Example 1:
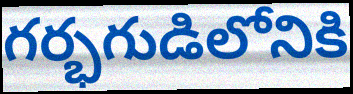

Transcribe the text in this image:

గర్భగుడిలోనికి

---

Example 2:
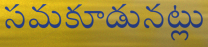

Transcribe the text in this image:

సమకూడునట్లు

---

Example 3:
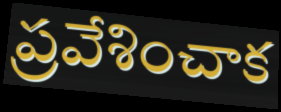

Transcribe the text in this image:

ప్రవేశించాక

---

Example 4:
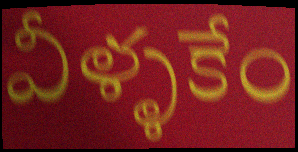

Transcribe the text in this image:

వీళ్ళకేం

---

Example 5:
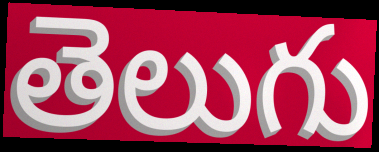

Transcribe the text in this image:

తెలుగు